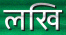
लखि